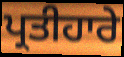
ਪ੍ਰਤੀਹਾਰੇ